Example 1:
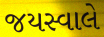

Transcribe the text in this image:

જયસ્વાલે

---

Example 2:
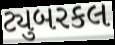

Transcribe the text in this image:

ટ્યુબરકલ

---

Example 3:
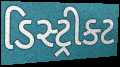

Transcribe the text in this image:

ડિસ્ટ્રીક્ટ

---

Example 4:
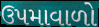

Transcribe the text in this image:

ઉપમાવાળો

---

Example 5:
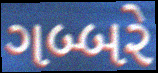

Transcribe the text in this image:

ગબ્બરે